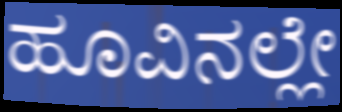
ಹೂವಿನಲ್ಲೇ